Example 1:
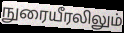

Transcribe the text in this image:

நுரையீரலிலும்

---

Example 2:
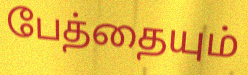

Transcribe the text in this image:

பேத்தையும்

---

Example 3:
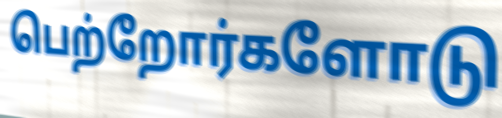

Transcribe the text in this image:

பெற்றோர்களோடு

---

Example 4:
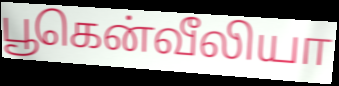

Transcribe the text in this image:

பூகென்வீலியா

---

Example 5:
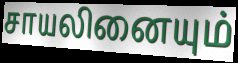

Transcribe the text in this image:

சாயலினையும்